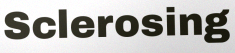
Sclerosing